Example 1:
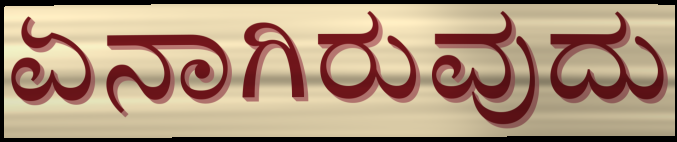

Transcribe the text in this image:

ಏನಾಗಿರುವುದು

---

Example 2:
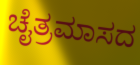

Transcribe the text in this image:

ಚೈತ್ರಮಾಸದ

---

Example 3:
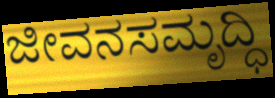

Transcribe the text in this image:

ಜೀವನಸಮೃದ್ಧಿ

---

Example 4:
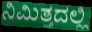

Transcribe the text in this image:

ನಿಮಿತ್ತದಲ್ಲಿ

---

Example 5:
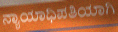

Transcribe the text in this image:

ನ್ಯಾಯಾಧಿಪತಿಯಾಗಿ